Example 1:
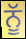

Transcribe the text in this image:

ਨੂੱ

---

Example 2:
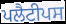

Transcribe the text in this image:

ਪਲੈਟੀਪਸ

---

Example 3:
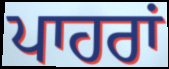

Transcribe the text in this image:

ਪਾਹਰਾਂ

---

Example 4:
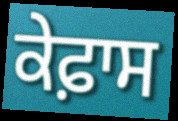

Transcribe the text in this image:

ਕੇਫ਼ਾਸ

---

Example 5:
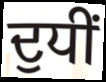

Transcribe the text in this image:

ਦੁਧੀਂ